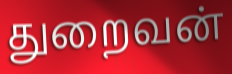
துறைவன்